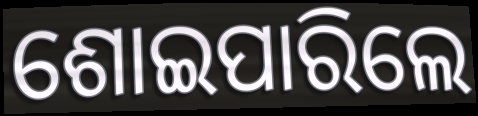
ଶୋଇପାରିଲେ